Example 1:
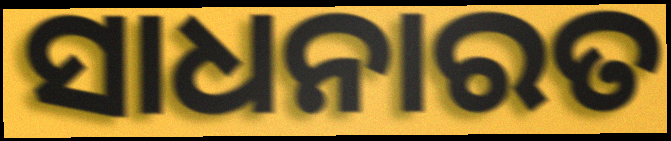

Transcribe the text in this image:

ସାଧନାରତ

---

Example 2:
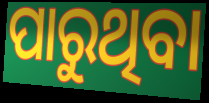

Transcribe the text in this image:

ପାରୁଥିବା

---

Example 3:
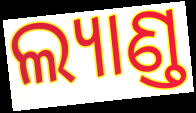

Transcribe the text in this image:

ଲ୍ୟାଣ୍ଡ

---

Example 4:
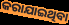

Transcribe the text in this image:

କରାଯାଇଥିବା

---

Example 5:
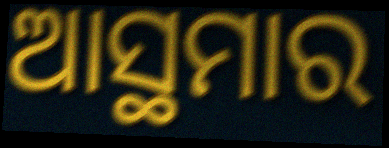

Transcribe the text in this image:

ଆସ୍ଥମାର